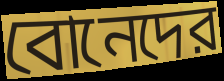
বোনেদের